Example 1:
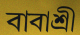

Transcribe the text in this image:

বাবাশ্রী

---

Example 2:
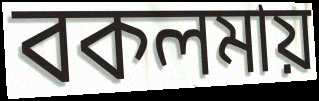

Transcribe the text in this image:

বকলমায়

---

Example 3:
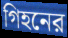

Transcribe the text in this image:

গিহনের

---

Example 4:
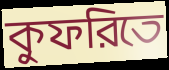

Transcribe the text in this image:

কুফরিতে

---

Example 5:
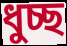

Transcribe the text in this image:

ধুচ্ছ